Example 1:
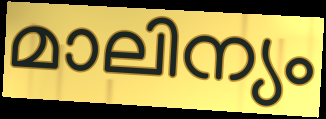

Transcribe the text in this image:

മാലിന്യം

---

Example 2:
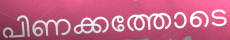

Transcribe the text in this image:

പിണക്കത്തോടെ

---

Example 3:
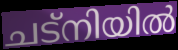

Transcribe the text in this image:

ചട്നിയിൽ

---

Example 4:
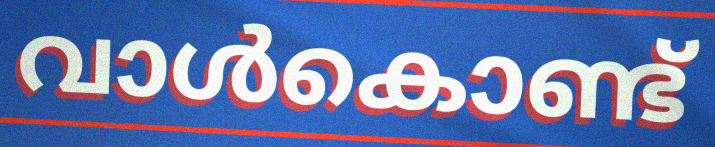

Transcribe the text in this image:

വാൾകൊണ്ട്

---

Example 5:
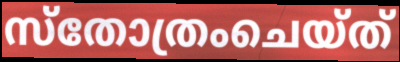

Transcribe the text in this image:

സ്തോത്രംചെയ്ത്